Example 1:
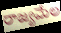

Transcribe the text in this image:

రాజ్యమేల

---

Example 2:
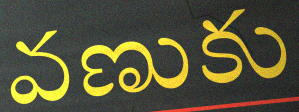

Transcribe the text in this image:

వణుకు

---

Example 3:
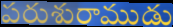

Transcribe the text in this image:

పరుశురాముడు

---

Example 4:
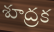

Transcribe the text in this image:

శూద్రక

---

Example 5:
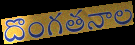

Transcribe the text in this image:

దొంగతనాల